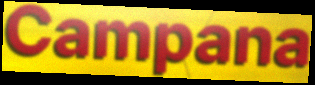
Campana